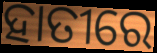
ହାତୀରେ